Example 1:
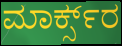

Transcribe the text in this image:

ಮಾರ್ಕ್ಸ್‌ರ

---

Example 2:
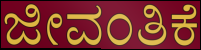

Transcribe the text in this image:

ಜೀವಂತಿಕೆ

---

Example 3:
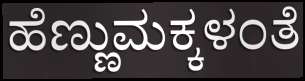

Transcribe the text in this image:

ಹೆಣ್ಣುಮಕ್ಕಳಂತೆ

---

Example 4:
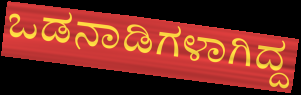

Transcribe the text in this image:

ಒಡನಾಡಿಗಳಾಗಿದ್ದ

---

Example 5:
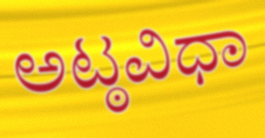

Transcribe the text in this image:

ಅಟ್ಠವಿಧಾ